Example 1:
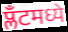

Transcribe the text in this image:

प्लँटमध्ये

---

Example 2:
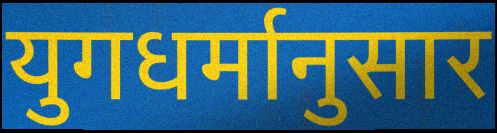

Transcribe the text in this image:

युगधर्मानुसार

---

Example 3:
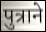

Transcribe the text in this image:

पुत्राने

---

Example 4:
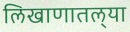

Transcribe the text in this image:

लिखाणातल्या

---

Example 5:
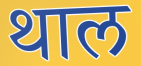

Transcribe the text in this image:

थाल